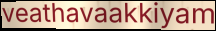
veathavaakkiyam